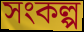
সংকল্প